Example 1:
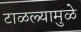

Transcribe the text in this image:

टाळल्यामुळे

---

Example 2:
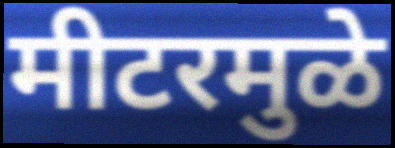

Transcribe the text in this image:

मीटरमुळे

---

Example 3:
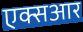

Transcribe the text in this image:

एक्सआर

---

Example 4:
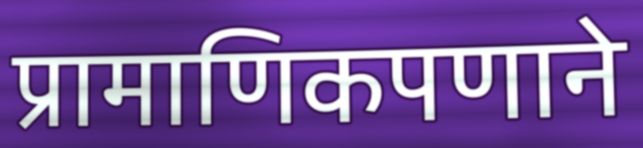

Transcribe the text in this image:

प्रामाणिकपणाने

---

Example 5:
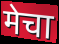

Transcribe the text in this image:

मेचा